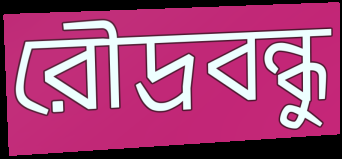
রৌদ্রবন্ধু